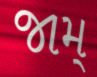
જામ્